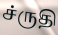
ச்ருதி